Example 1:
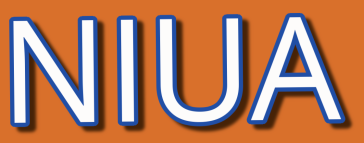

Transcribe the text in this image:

NIUA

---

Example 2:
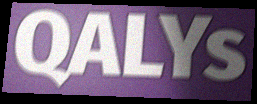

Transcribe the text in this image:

QALYs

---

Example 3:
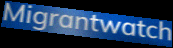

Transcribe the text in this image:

Migrantwatch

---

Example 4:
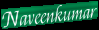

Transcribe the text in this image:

Naveenkumar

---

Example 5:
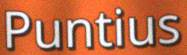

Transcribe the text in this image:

Puntius